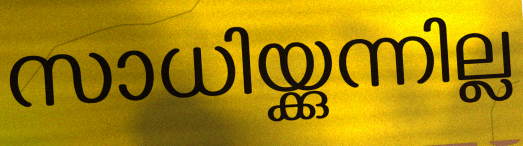
സാധിയ്ക്കുന്നില്ല